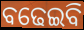
ବଢେଇବି